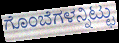
ಗೊಂಬೆಗಳನ್ನಿಟ್ಟು